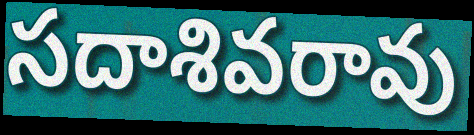
సదాశివరావు